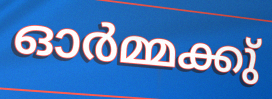
ഓർമ്മക്കു്